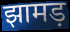
झामड़